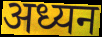
अध्यन